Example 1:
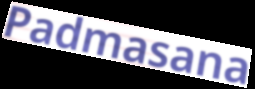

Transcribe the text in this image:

Padmasana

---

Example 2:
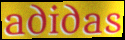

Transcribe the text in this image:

adidas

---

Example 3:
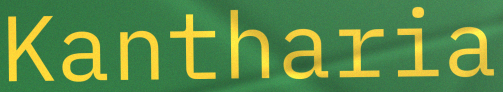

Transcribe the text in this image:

Kantharia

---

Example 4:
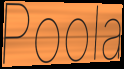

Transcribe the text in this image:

Poola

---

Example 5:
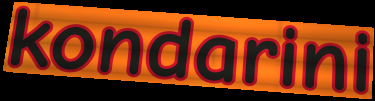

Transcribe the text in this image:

kondarini